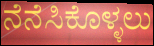
ನೆನೆಸಿಕೊಳ್ಳಲು